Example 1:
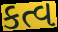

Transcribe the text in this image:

કત્વ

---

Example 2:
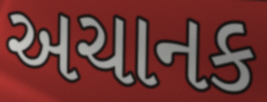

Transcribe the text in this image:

અચાનક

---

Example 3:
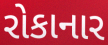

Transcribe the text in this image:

રોકાનાર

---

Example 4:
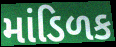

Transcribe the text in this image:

માંડિળક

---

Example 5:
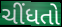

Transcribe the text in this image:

ચીંધતો